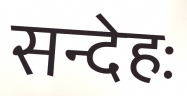
सन्देहः